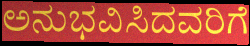
ಅನುಭವಿಸಿದವರಿಗೆ